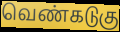
வெண்கடுகு